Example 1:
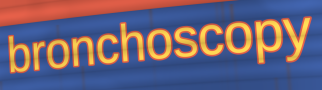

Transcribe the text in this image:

bronchoscopy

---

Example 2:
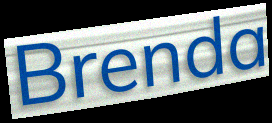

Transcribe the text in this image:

Brenda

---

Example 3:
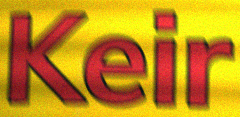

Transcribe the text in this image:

Keir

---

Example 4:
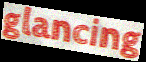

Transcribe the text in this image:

glancing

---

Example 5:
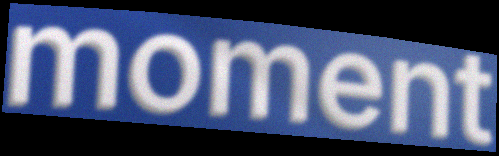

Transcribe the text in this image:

moment